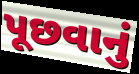
પૂછવાનું